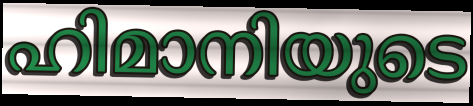
ഹിമാനിയുടെ